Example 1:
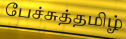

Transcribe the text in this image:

பேச்சுத்தமிழ்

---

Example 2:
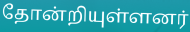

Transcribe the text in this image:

தோன்றியுள்ளனர்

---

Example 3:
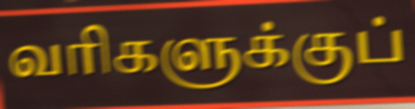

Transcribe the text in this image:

வரிகளுக்குப்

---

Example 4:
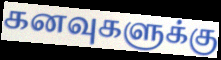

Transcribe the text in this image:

கனவுகளுக்கு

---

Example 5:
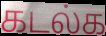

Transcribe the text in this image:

கடல்க